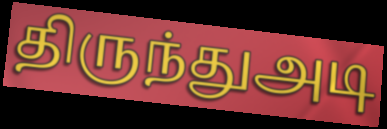
திருந்துஅடி